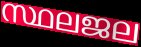
സ്ഥലജല